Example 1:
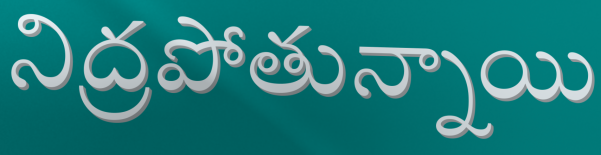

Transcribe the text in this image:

నిద్రపోతున్నాయి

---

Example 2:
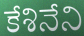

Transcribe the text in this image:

కేశినేని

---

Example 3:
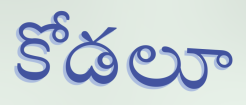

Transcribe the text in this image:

కోడలూ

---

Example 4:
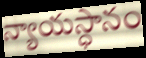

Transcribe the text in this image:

న్యాయస్ధానం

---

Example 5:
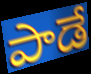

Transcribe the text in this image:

పాడే